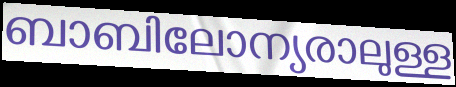
ബാബിലോന്യരാലുള്ള